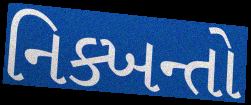
નિક્ખન્તો